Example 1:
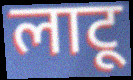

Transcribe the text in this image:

लाटू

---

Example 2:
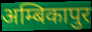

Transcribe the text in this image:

अम्बिकापुर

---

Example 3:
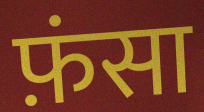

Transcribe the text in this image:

फ़ंसा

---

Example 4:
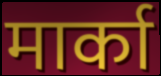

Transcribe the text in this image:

मार्का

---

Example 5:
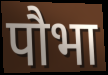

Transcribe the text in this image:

पौभा